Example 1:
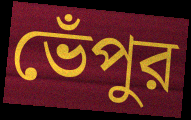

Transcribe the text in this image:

ভেঁপুর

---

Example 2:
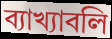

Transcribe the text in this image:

ব্যাখ্যাবলি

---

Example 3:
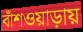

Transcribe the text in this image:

বাঁশওয়াড়ায়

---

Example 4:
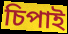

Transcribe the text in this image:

চিপাই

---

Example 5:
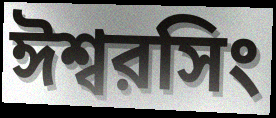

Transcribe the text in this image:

ঈশ্বরসিং